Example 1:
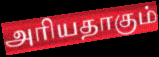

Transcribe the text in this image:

அரியதாகும்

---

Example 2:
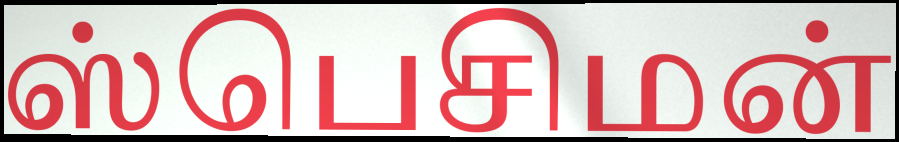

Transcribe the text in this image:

ஸ்பெசிமன்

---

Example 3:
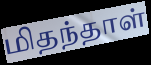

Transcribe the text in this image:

மிதந்தாள்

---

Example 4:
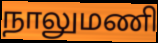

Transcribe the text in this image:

நாலுமணி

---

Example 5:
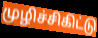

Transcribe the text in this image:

முழிச்சிகிட்டு